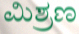
ಮಿಶ್ರಣ